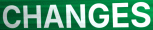
CHANGES